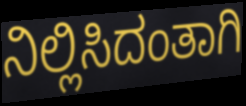
ನಿಲ್ಲಿಸಿದಂತಾಗಿ